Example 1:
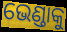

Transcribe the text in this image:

ଭେଣ୍ଡାକୁ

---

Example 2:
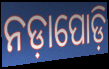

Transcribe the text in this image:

ନଡ଼ାପୋଡ଼ି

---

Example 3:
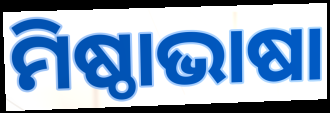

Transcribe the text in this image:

ମିଷ୍ଠାଭାଷା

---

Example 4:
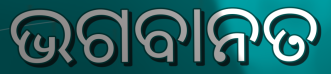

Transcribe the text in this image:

ଭଗବାନତ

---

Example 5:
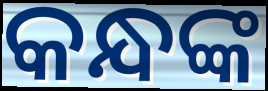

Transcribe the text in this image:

କନ୍ଧଙ୍କ